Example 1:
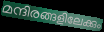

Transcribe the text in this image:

മന്ദിരങ്ങളിലേക്കും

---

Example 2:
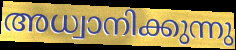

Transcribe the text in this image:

അധ്വാനിക്കുന്നു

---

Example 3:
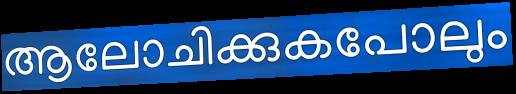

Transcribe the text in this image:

ആലോചിക്കുകപോലും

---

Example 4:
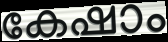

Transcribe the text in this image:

കേഷാം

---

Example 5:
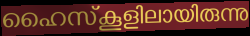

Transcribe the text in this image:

ഹൈസ്‌കൂളിലായിരുന്നു